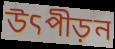
উৎপীড়ন